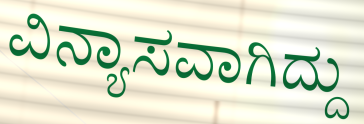
ವಿನ್ಯಾಸವಾಗಿದ್ದು